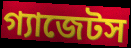
গ্যাজেটস